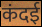
कंदई